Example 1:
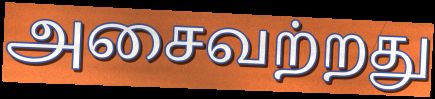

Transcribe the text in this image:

அசைவற்றது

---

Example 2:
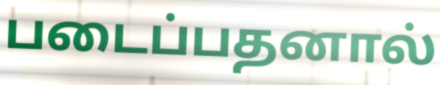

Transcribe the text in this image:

படைப்பதனால்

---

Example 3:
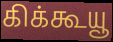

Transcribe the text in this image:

கிக்கூயூ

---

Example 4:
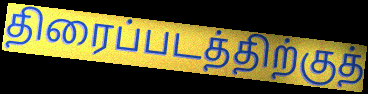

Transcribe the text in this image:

திரைப்படத்திற்குத்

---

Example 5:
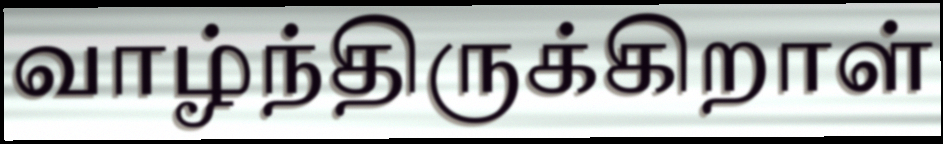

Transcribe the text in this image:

வாழ்ந்திருக்கிறாள்